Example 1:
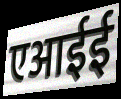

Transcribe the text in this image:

एआईई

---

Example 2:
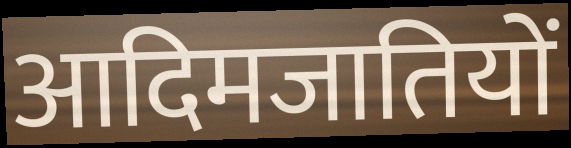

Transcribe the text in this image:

आदिमजातियों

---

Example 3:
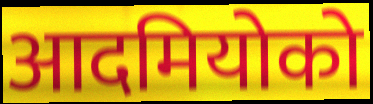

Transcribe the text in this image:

आदमियोको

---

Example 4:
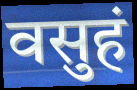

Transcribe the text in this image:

वसुहं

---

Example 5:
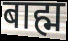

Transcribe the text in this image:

बाह्म